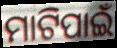
ମାଟିପାଇଁ